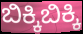
ಬಿಕ್ಕಿಬಿಕ್ಕಿ